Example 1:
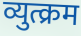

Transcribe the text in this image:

व्युत्क्रम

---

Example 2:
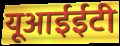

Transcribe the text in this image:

यूआईईटी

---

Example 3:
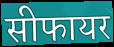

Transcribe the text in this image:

सीफायर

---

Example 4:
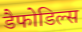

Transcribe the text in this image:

डैफोडिल्स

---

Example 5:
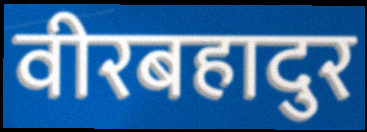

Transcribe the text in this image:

वीरबहादुर